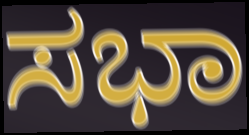
ಸಭಾ